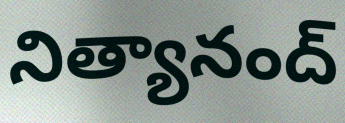
నిత్యానంద్